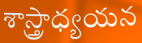
శాస్త్రాధ్యయన